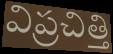
విప్రచిత్తి